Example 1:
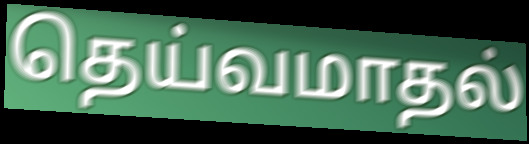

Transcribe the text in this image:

தெய்வமாதல்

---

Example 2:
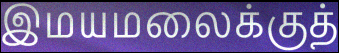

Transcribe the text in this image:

இமயமலைக்குத்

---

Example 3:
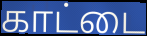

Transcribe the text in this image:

காட்டை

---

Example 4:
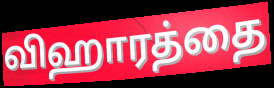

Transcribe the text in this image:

விஹாரத்தை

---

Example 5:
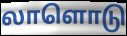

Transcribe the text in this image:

லாளொடு